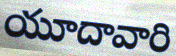
యూదావారి